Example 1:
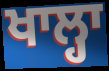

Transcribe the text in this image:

ਖਾਲ੍ਹਾ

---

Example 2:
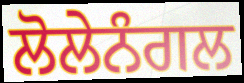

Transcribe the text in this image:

ਲੋਲੇਨੰਗਲ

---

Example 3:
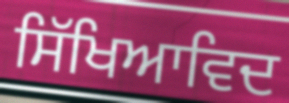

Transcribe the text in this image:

ਸਿੱਖਿਆਵਿਦ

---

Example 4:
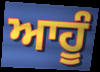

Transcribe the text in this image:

ਆਹੂੰ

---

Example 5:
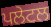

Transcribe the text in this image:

ਪਲੇਟਲ